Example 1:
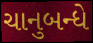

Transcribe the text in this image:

ચાનુબન્ધે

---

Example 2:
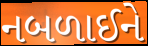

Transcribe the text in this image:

નબળાઈને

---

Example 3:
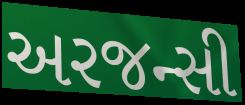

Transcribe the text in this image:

અરજન્સી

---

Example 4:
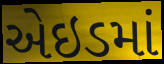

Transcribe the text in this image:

એઇડમાં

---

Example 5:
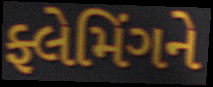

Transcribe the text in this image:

ફ્લેમિંગને